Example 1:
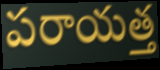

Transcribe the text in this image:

పరాయత్త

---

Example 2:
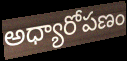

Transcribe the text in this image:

అధ్యారోపణం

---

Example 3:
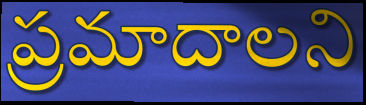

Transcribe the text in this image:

ప్రమాదాలని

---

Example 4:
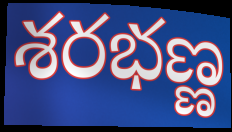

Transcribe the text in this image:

శరభణ్ణ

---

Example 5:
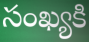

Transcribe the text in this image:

సంఖ్యకి